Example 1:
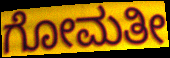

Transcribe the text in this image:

ಗೋಮತೀ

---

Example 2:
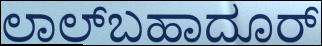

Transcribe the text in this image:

ಲಾಲ್‌ಬಹಾದೂರ್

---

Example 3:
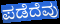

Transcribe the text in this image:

ಪಡೆದೆವು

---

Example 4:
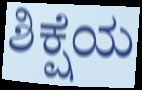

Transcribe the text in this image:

ಶಿಕ್ಷೆಯ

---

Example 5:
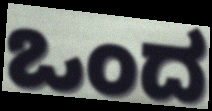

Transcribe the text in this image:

ಒಂದ